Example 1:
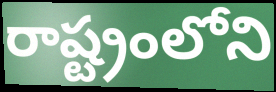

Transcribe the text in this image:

రాష్ట్రంలోని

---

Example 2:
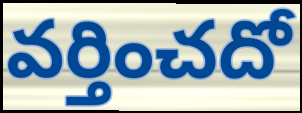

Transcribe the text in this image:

వర్తించదో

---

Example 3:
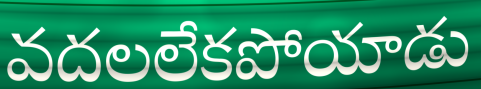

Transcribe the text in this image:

వదలలేకపోయాడు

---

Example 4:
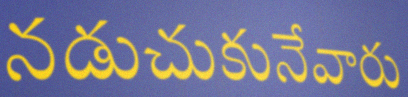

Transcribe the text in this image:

నడుచుకునేవారు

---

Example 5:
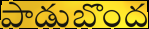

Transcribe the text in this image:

పాడుబొంద